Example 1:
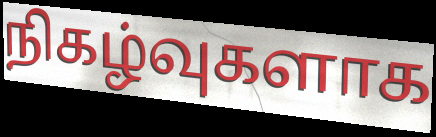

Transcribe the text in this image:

நிகழ்வுகளாக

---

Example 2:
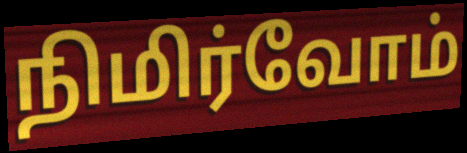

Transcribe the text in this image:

நிமிர்வோம்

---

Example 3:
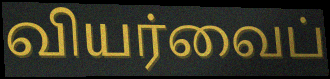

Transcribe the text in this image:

வியர்வைப்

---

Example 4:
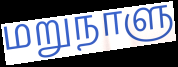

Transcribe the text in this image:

மறுநாளு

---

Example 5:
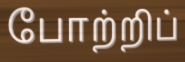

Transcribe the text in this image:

போற்றிப்